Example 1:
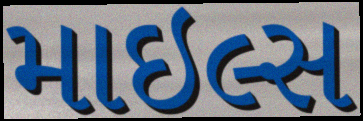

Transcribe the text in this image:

માઇલ્સ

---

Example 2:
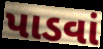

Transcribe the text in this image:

પાડવાં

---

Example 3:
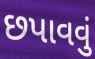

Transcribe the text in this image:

છપાવવું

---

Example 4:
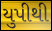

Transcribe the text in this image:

યુપીથી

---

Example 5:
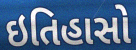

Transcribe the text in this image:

ઇતિહાસો